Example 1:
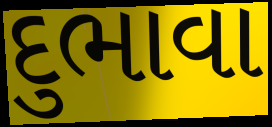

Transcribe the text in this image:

દુભાવા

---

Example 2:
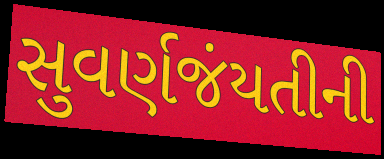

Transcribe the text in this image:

સુવર્ણજંયતીની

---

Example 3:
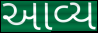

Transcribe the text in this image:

આવ્ય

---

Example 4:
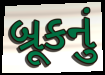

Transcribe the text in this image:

બ્રૂકનું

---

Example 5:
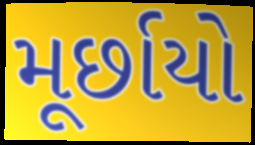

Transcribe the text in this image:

મૂર્છાયો